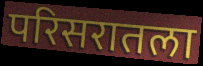
परिसरातला